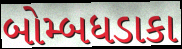
બોમ્બધડાકા